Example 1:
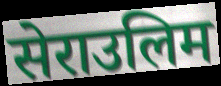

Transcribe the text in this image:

सेराउलिम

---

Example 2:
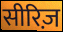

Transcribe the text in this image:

सीरिज़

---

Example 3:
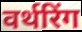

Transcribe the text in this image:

वर्थरिंग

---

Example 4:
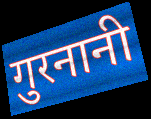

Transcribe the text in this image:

गुरनानी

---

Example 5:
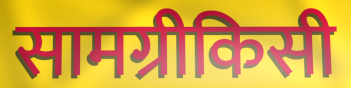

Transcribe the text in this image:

सामग्रीकिसी